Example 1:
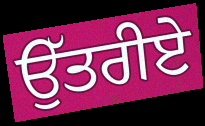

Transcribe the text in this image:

ਉੱਤਰੀਏ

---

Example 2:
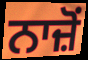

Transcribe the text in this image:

ਨਾਜ਼ੋਂ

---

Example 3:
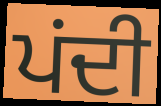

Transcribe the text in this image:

ਪਂਦੀ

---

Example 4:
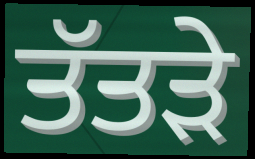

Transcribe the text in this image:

ਤੱਤੜੇ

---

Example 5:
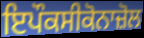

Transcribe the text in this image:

ਇਪੌਕਸੀਕੋਨਾਜ਼ੋਲ